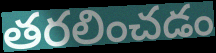
తరలించడం